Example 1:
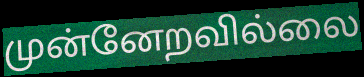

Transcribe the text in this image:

முன்னேறவில்லை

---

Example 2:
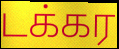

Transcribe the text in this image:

டக்கர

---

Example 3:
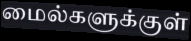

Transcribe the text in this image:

மைல்களுக்குள்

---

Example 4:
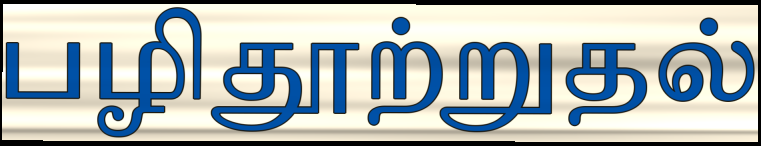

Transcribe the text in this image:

பழிதூற்றுதல்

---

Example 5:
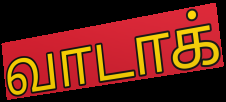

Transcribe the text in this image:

வாடாக்